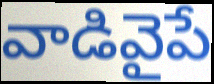
వాడివైపే